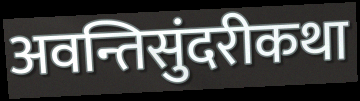
अवन्तिसुंदरीकथा